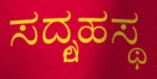
ಸದ್ಗೃಹಸ್ಥ